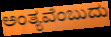
ಅಂತ್ಯವೆಂಬುದು